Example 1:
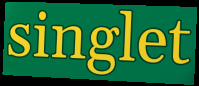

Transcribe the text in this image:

singlet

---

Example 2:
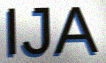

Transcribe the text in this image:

IJA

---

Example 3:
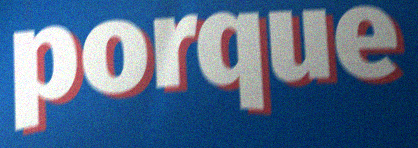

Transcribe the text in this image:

porque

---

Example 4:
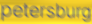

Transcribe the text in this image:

petersburg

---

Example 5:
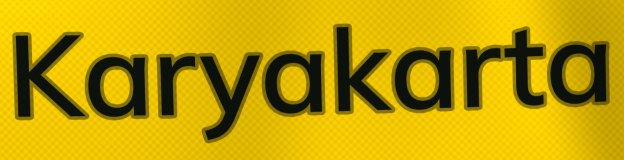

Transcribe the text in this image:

Karyakarta